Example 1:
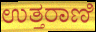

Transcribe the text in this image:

ಉತ್ತರಾಣಿ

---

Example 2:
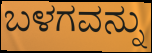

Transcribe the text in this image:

ಬಳಗವನ್ನು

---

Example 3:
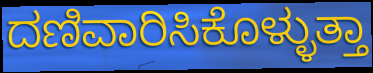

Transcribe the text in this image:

ದಣಿವಾರಿಸಿಕೊಳ್ಳುತ್ತಾ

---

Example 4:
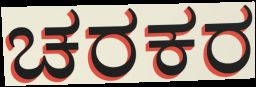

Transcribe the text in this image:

ಚರಕರ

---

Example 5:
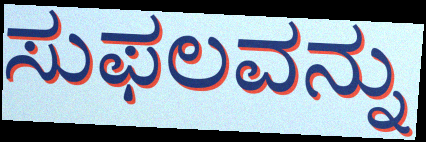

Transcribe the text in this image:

ಸುಫಲವನ್ನು